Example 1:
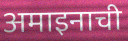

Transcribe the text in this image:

अमाइनाची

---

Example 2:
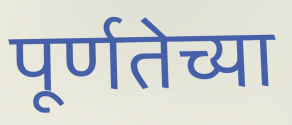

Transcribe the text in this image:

पूर्णतेच्या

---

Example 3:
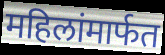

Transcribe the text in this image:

महिलांमार्फत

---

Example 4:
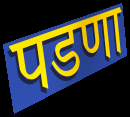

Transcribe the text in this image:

पडणा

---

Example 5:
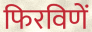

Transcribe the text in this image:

फिरविणें